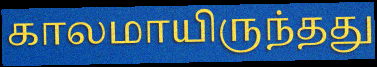
காலமாயிருந்தது